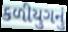
કળીયુગનું